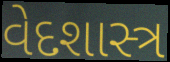
વેદશાસ્ત્ર